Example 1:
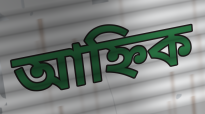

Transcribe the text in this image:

আহ্নিক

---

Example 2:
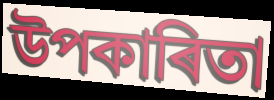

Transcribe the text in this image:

উপকাৰিতা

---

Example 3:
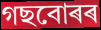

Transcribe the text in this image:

গছবোৰৰ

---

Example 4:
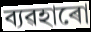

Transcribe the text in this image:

ব্যৱহাৰো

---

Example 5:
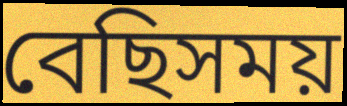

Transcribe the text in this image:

বেছিসময়